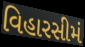
વિહારસીમં